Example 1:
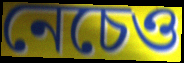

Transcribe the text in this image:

নেচেও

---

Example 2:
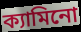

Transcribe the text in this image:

ক্যামিনো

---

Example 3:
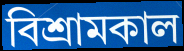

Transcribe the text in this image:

বিশ্রামকাল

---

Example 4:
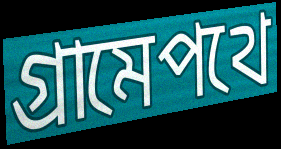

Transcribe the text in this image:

গ্রামেপথে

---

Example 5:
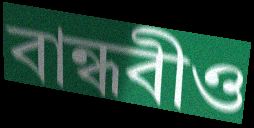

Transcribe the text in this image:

বান্ধবীও